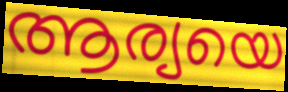
ആര്യയെ